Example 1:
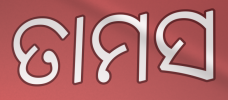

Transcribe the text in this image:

ତାମସ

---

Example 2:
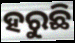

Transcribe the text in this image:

ହରୁଛି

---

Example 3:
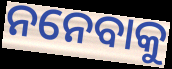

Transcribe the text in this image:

ନନେବାକୁ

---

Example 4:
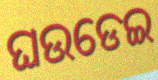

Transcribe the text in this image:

ଘଉଡେଇ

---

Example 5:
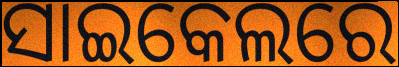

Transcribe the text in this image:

ସାଇକେଲରେ